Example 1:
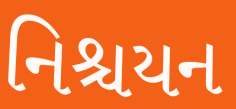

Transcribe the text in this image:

નિશ્ચયન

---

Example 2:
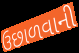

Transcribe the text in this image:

ઉછાળવાની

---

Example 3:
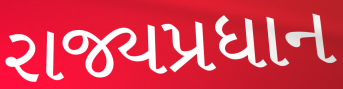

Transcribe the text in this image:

રાજ્યપ્રધાન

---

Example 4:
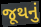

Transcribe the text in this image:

જૂથનું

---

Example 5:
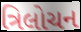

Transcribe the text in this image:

ત્રિલોચન